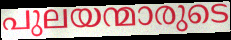
പുലയന്മാരുടെ